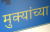
मुक्यांच्या